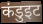
कंडुइट